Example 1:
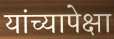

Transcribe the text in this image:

यांच्यापेक्षा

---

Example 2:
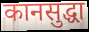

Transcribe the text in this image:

कानसुद्धा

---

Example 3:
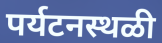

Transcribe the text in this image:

पर्यटनस्थळी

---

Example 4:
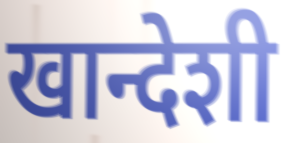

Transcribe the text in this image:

खान्देशी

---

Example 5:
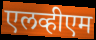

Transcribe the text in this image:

एलव्हीएम